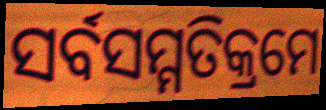
ସର୍ବସମ୍ମତିକ୍ରମେ